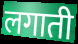
लगाती